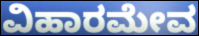
ವಿಹಾರಮೇವ